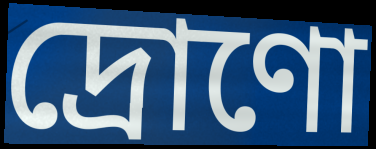
দ্রোণো